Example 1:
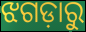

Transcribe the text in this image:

ଝଗଡ଼ାରୁ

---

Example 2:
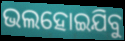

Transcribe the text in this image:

ଭଲହୋଇଯିବୁ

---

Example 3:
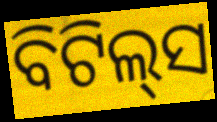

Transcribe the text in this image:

ବିଟିଲ୍‌ସ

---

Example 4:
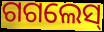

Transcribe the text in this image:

ଗଗଲେସ୍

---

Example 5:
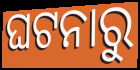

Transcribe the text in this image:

ଘଟନାରୁ